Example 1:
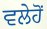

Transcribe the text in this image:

ਵਲੇਹੋਂ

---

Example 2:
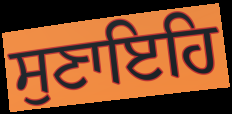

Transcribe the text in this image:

ਸੁਣਾਇਹਿ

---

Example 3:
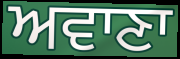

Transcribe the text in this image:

ਅਵਾਣਾ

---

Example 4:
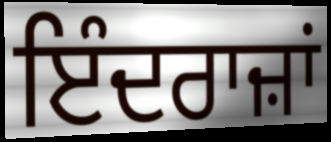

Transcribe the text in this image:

ਇੰਦਰਾਜ਼ਾਂ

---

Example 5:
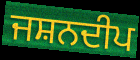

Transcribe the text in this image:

ਜਸ਼ਨਦੀਪ